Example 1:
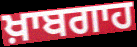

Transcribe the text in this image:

ਖ਼ਾਬਗਾਹ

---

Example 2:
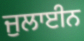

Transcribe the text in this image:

ਜੁਲਾਈਨ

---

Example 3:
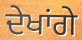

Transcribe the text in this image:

ਦੇਖਾਂਗੇ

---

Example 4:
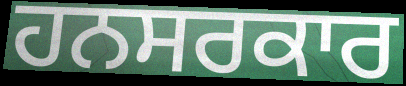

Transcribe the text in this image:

ਹਨਸਰਕਾਰ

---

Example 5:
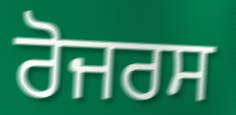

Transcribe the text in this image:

ਰੋਜਰਸ